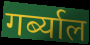
गर्ब्याल